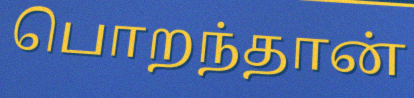
பொறந்தான்